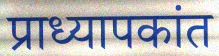
प्राध्यापकांत